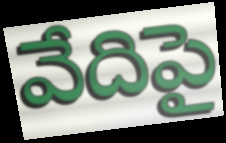
వేదిపై